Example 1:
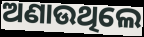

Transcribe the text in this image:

ଅଣାଉଥିଲେ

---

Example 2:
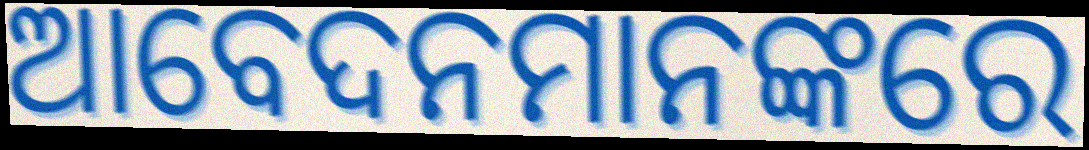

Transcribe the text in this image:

ଆବେଦନମାନଙ୍କରେ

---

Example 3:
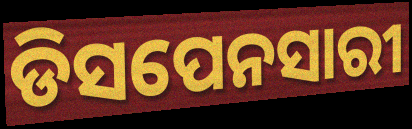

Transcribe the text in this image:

ଡିସପେନସାରୀ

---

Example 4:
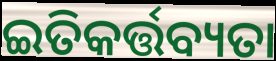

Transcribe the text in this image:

ଇତିକର୍ତ୍ତବ୍ୟତା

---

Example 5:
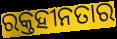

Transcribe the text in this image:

ରକ୍ତହୀନତାର